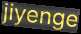
jiyenge